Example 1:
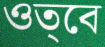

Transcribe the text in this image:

ওত্‌বে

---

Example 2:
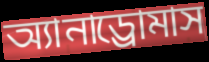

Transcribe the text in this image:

অ্যানাড্রোমাস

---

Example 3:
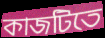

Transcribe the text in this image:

কাজটিতে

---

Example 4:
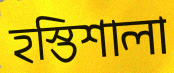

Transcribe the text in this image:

হস্তিশালা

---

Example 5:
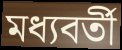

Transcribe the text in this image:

মধ্যবর্তী